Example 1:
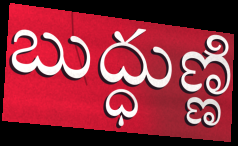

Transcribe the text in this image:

బుద్ధుణ్ణి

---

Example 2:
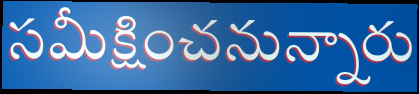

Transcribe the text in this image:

సమీక్షించనున్నారు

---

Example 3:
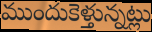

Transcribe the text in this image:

ముందుకెళ్తున్నట్లు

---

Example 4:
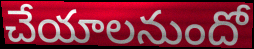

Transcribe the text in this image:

చేయాలనుందో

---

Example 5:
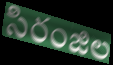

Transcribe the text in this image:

సిరంజిల